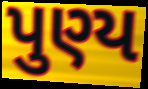
પુણ્ય